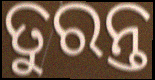
ତୁରନ୍ତ